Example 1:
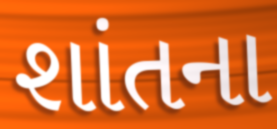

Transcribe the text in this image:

શાંતના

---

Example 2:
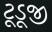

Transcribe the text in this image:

ટૂડૂજી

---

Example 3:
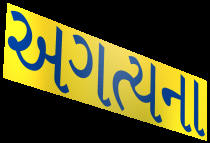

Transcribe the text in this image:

અગત્યના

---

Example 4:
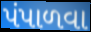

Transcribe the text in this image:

પંપાળવા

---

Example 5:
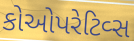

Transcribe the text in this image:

કોઓપરેટિવ્સ